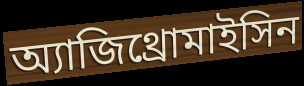
অ্যাজিথ্রোমাইসিন